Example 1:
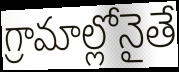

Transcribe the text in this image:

గ్రామాల్లోనైతే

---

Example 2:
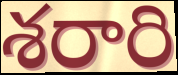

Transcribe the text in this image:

శరారి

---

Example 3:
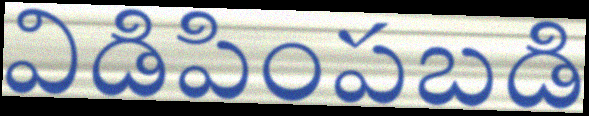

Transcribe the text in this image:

విడిపింపబడి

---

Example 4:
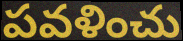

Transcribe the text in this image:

పవళించు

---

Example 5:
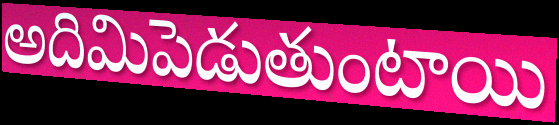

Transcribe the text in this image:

అదిమిపెడుతుంటాయి